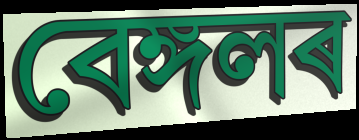
বেঙ্গলৰ